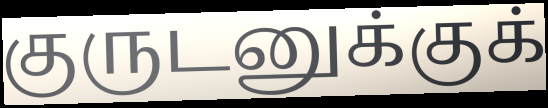
குருடனுக்குக்